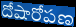
దోషారోపణ